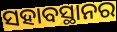
ସହାବସ୍ଥାନର